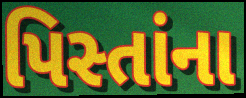
પિસ્તાંના